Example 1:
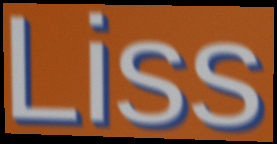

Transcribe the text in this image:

Liss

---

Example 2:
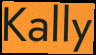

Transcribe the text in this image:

Kally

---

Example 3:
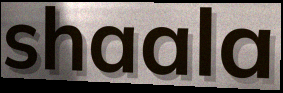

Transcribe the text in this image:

shaala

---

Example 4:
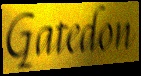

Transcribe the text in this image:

Gatedon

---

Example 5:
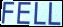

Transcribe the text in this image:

FELL